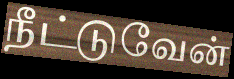
நீட்டுவேன்